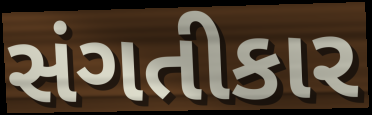
સંગતીકાર